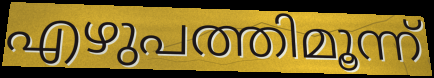
എഴുപത്തിമൂന്ന്